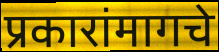
प्रकारांमागचे